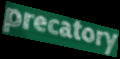
precatory